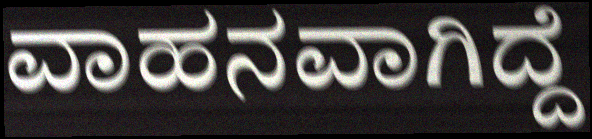
ವಾಹನವಾಗಿದ್ದೆ